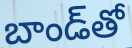
బాండ్‌తో